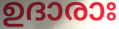
ഉദാരാഃ